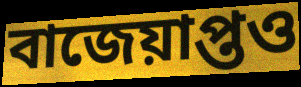
বাজেয়াপ্তও